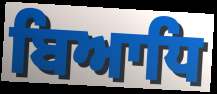
ਬਿਆਧਿ